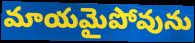
మాయమైపోవును